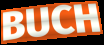
BUCH